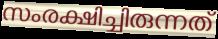
സംരക്ഷിച്ചിരുന്നത്